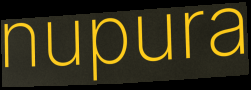
nupura